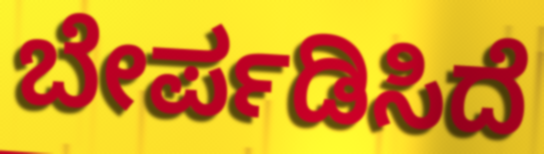
ಬೇರ್ಪಡಿಸಿದೆ